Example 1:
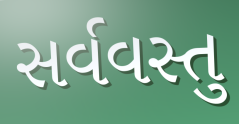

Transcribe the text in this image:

સર્વવસ્તુ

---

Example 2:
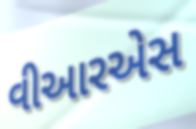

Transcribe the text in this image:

વીઆરએસ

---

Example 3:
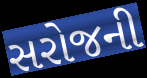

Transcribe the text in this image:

સરોજની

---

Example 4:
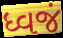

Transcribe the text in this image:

ધ્વજં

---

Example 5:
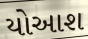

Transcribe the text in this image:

યોઆશ